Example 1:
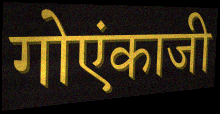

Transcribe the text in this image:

गोएंकाजी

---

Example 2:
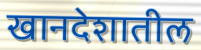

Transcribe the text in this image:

खानदेशातील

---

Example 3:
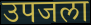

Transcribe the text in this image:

उपजला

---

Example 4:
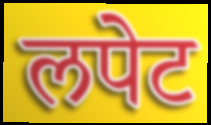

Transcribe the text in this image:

लपेट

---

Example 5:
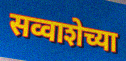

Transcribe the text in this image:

सव्वाशेच्या